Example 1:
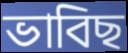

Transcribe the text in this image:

ভাবিছ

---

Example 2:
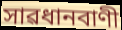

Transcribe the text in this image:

সাৱধানবাণী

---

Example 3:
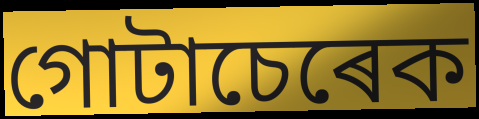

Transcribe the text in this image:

গোটাচেৰেক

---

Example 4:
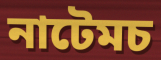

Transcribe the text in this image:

নাটেমচ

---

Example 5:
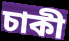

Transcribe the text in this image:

চাকী